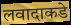
लवादाकडे